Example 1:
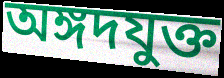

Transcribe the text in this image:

অঙ্গদযুক্ত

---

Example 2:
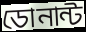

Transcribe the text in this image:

ডোনান্ট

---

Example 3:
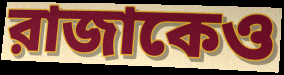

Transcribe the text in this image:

রাজাকেও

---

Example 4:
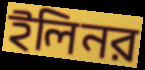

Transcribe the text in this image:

ইলিনর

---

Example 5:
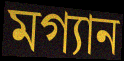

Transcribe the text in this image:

মগ্যান